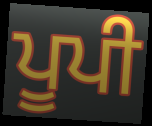
ਪੂਪੀ